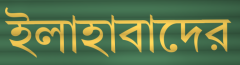
ইলাহাবাদের